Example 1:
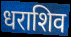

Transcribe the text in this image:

धराशिव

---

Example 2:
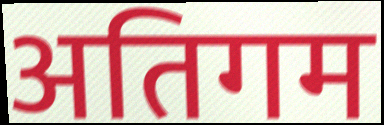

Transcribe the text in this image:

अतिगम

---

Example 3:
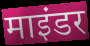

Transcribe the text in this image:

माइंडर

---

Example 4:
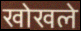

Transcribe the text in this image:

खोखले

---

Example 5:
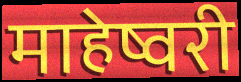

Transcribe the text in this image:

माहेष्वरी